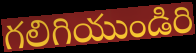
గలిగియుండిరి